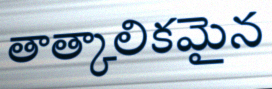
తాత్కాలికమైన